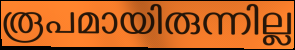
രൂപമായിരുന്നില്ല